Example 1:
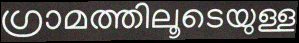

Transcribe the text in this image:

ഗ്രാമത്തിലൂടെയുള്ള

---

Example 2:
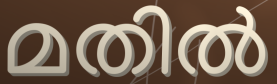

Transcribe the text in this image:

മതിൽ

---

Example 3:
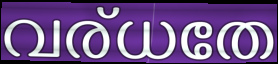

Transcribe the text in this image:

വര്ധതേ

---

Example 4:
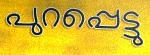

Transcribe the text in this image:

പുറപ്പെട്ടു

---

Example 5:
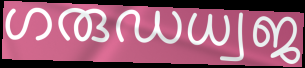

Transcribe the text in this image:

ഗരുഡധ്വജ